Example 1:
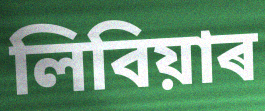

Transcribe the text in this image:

লিবিয়াৰ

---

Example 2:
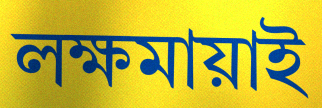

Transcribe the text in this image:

লক্ষমায়াই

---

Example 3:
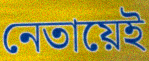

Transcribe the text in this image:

নেতায়েই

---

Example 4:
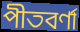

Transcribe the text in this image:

পীতবৰ্ণা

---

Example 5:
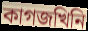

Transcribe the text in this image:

কাগজখিনি